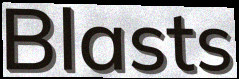
Blasts